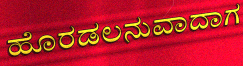
ಹೊರಡಲನುವಾದಾಗ